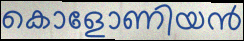
കൊളോണിയൻ